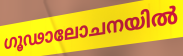
ഗൂഢാലോചനയിൽ